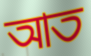
আত